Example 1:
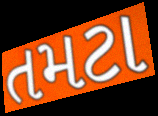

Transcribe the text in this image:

તમટા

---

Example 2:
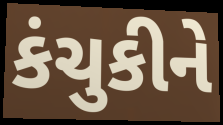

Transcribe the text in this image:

કંચુકીને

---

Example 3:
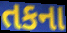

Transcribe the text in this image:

તકના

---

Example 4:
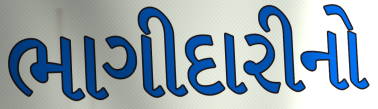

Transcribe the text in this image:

ભાગીદારીનો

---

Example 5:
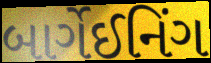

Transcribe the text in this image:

બાર્ગેઈનિંગ